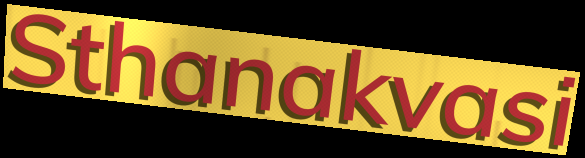
Sthanakvasi